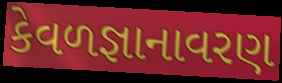
કેવળજ્ઞાનાવરણ